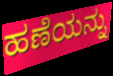
ಹಣೆಯನ್ನು